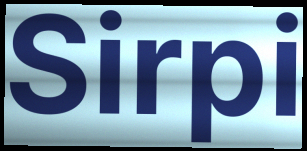
Sirpi